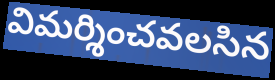
విమర్శించవలసిన